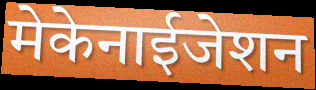
मेकेनाईजेशन